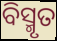
ବିସ୍ମୃତ